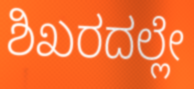
ಶಿಖರದಲ್ಲೇ